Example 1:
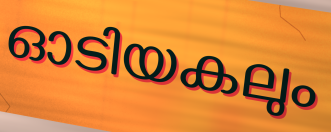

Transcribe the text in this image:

ഓടിയകലും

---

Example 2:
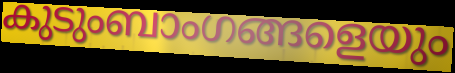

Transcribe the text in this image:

കുടുംബാംഗങ്ങളെയും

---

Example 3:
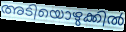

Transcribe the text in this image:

അടിയൊഴുക്കിൽ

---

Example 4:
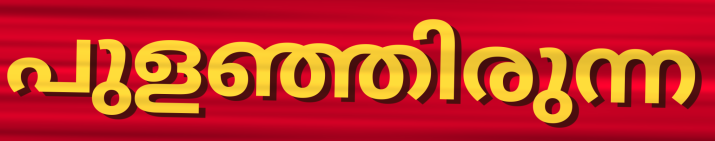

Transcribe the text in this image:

പുളഞ്ഞിരുന്ന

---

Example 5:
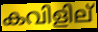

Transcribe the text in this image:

കവിളില്